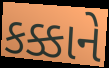
કક્કાને